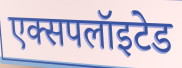
एक्सपलॉइटेड